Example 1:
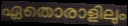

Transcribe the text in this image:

ഏതൊരാളിലും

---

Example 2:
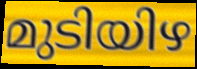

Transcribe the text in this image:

മുടിയിഴ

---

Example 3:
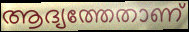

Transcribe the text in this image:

ആദ്യത്തേതാണ്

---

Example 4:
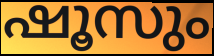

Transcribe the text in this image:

ഷൂസും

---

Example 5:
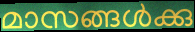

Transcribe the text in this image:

മാസങ്ങൾക്കു